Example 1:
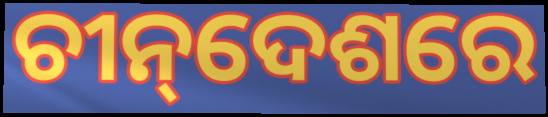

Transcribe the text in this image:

ଚୀନ୍‌ଦେଶରେ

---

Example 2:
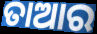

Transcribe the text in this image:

ତାଆର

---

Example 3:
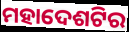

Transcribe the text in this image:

ମହାଦେଶଟିର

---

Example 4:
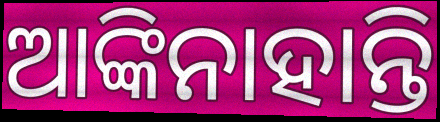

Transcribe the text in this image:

ଆଙ୍କିନାହାନ୍ତି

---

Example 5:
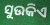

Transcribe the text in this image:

ସୁଉକିଏ